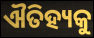
ଐତିହ୍ୟକୁ